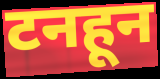
टनहून